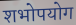
शभोपयोग